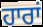
ਹਾਰਾਂ